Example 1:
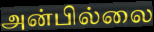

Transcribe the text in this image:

அன்பில்லை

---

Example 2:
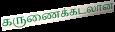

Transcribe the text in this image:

கருணைக்கடலான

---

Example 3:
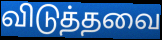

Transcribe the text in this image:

விடுத்தவை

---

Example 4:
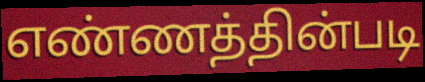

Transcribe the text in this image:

எண்ணத்தின்படி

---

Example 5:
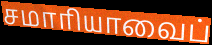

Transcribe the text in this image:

சமாரியாவைப்